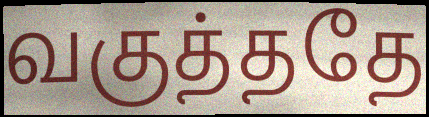
வகுத்ததே